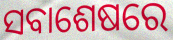
ସବାଶେଷରେ